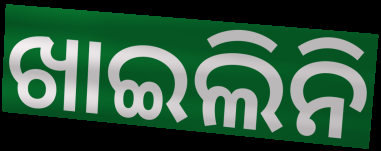
ଖାଇଲିନି